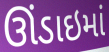
ઊંડાઇમાં